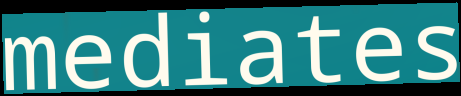
mediates